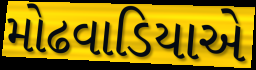
મોઢવાડિયાએ